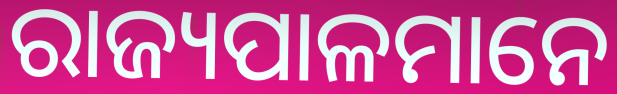
ରାଜ୍ୟପାଳମାନେ